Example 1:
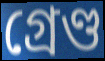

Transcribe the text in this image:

গ্ৰেণ্ড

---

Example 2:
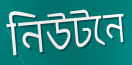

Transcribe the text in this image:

নিউটনে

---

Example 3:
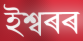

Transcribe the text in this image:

ইশ্বৰৰ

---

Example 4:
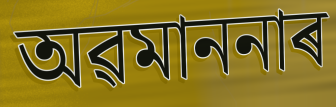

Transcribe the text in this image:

অৱমাননাৰ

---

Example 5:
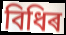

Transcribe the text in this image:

বিধিৰ